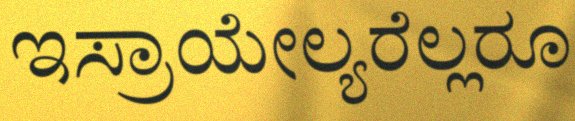
ಇಸ್ರಾಯೇಲ್ಯರೆಲ್ಲರೂ